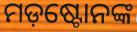
ମଡ଼ଷ୍ଟୋନଙ୍କ